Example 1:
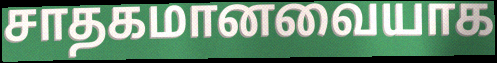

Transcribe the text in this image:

சாதகமானவையாக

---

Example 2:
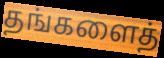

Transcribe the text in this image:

தங்களைத்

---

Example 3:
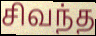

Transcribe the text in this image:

சிவந்த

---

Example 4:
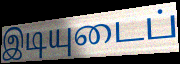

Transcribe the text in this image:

இடியுடைப்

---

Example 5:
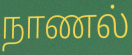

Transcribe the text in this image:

நாணல்